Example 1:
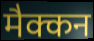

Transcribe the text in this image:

मैक्कन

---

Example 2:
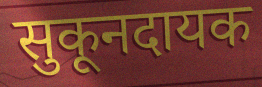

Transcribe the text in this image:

सुकूनदायक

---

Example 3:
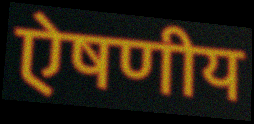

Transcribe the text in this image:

ऐषणीय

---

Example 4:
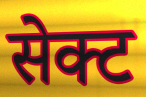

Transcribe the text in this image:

सेक्ट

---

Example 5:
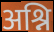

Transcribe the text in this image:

अश्नि